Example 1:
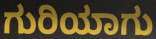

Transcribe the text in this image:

ಗುರಿಯಾಗು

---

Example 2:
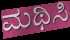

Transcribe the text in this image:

ಮಥಿಸಿ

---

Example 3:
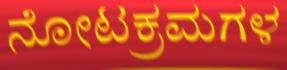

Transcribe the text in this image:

ನೋಟಕ್ರಮಗಳ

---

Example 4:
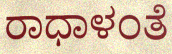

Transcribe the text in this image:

ರಾಧಾಳಂತೆ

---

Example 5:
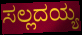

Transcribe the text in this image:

ಸಲ್ಲದಯ್ಯ